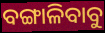
ବଙ୍ଗାଳିବାବୁ